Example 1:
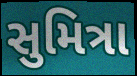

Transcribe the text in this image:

સુમિત્રા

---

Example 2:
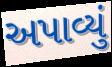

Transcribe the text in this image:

અપાવ્યું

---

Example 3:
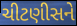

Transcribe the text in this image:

ચીટણીસને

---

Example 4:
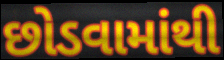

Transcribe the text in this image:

છોડવામાંથી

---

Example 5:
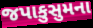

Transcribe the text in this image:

જપાકુસુમના